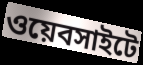
ওয়েবসাইটে